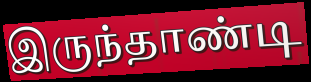
இருந்தாண்டி